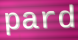
pard